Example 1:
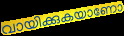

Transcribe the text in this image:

വായിക്കുകയാണോ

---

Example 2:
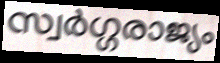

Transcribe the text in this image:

സ്വർഗ്ഗരാജ്യം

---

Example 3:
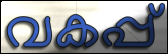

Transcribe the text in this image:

വകപ്പ്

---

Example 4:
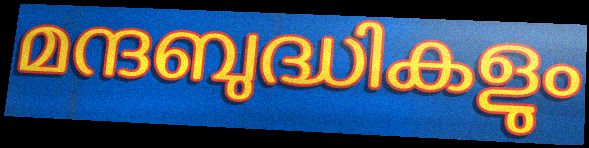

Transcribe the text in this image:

മന്ദബുദ്ധികളും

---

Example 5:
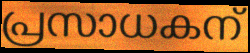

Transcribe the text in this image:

പ്രസാധകന്